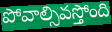
పోవాల్సివస్తోంది